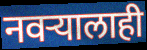
नवऱ्यालाही